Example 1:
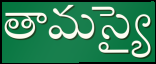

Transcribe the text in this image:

తామస్యై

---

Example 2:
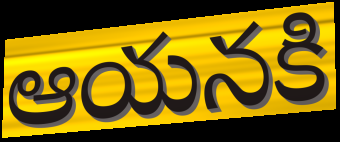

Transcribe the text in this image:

ఆయనకి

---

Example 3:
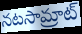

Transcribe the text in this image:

నటసామ్రాట్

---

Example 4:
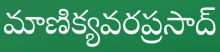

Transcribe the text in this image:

మాణిక్యవరప్రసాద్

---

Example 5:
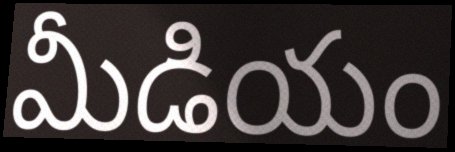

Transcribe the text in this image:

మీడియం